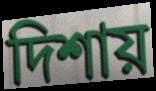
দিশায়